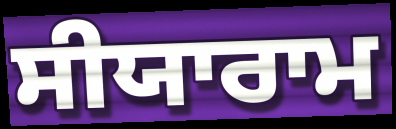
ਸੀਯਾਰਾਮ